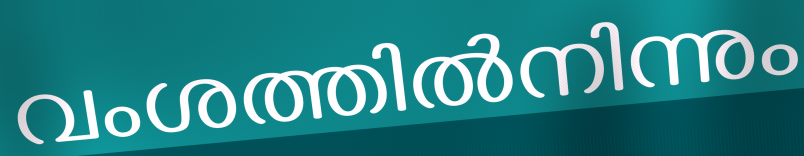
വംശത്തിൽനിന്നും